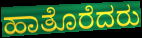
ಹಾತೊರೆದರು